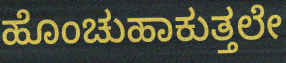
ಹೊಂಚುಹಾಕುತ್ತಲೇ